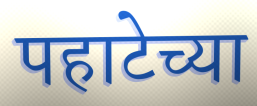
पहाटेच्या